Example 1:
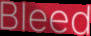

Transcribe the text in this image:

Bleed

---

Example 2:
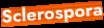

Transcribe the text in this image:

Sclerospora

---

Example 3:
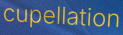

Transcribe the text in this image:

cupellation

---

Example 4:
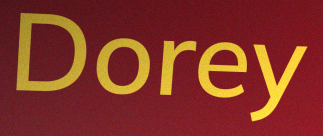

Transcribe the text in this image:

Dorey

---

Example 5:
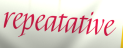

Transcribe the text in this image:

repeatative